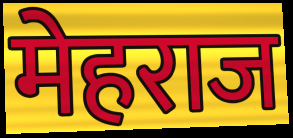
मेहराज